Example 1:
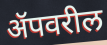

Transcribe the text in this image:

ॲपवरील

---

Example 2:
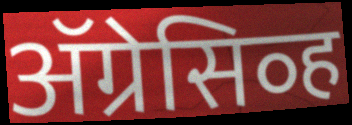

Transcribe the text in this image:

ॲग्रेसिव्ह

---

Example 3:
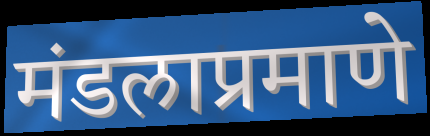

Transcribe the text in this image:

मंडलाप्रमाणे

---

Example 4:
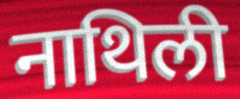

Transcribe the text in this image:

नाथिली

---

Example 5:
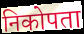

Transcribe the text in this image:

निकोपता